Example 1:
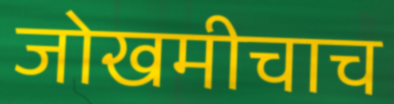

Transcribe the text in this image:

जोखमीचाच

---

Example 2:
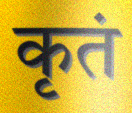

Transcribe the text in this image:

कृतं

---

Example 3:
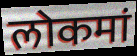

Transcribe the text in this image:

लोकमां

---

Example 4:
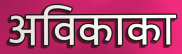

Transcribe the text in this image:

अविकाका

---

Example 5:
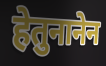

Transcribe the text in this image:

हेतुनानेन